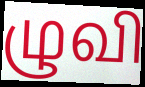
ழுவி